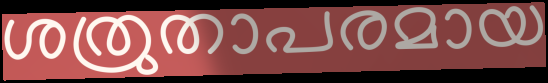
ശത്രുതാപരമായ